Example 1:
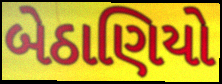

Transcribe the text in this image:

બેઠાણિયો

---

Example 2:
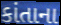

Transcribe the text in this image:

કાંતાના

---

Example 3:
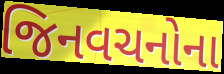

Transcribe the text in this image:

જિનવચનોના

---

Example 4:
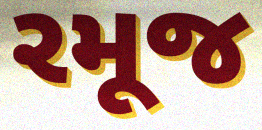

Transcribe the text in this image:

રમૂજ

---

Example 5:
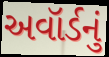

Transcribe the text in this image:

અવૉર્ડનું